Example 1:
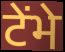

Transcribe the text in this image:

टेंभे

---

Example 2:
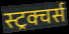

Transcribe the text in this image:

स्ट्रक्चर्स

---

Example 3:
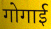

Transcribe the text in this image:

गोगाई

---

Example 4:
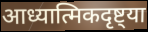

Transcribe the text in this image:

आध्यात्मिकदृष्ट्या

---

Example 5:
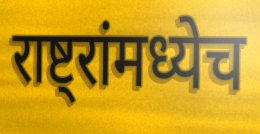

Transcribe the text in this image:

राष्ट्रांमध्येच